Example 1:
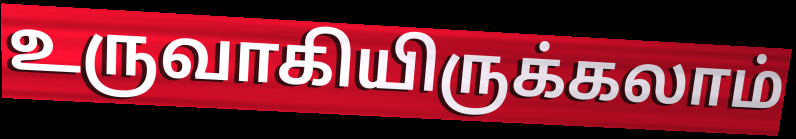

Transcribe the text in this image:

உருவாகியிருக்கலாம்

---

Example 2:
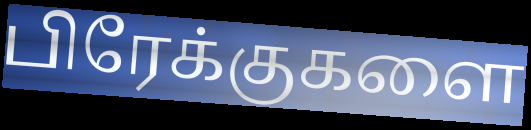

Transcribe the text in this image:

பிரேக்குகளை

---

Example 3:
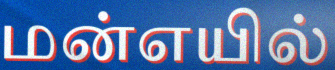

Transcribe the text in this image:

மன்எயில்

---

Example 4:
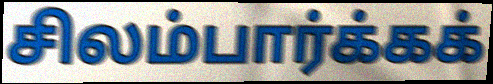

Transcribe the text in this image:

சிலம்பார்க்கக்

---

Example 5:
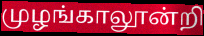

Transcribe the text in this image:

முழங்காலூன்றி